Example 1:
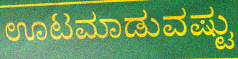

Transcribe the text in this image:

ಊಟಮಾಡುವಷ್ಟು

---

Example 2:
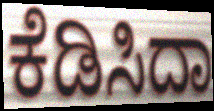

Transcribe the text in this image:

ಕೆಡಿಸಿದಾ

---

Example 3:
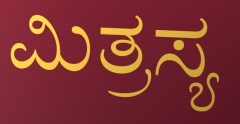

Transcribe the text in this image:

ಮಿತ್ರಸ್ಯ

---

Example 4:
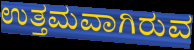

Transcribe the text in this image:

ಉತ್ತಮವಾಗಿರುವ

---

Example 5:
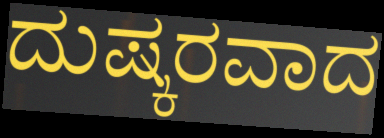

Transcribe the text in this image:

ದುಷ್ಕರವಾದ